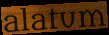
alatum